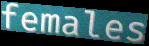
females